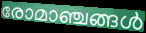
രോമാഞ്ചങ്ങൾ